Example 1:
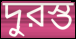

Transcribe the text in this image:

দুরস্ত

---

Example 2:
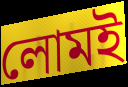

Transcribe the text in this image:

লোমই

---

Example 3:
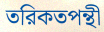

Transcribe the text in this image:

তরিকতপন্থী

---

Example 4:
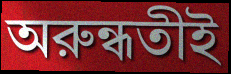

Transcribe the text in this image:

অরুন্ধতীই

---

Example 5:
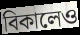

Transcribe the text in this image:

বিকালেও